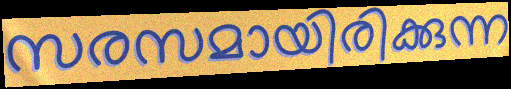
സരസമായിരിക്കുന്ന